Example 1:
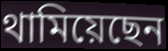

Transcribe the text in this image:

থামিয়েছেন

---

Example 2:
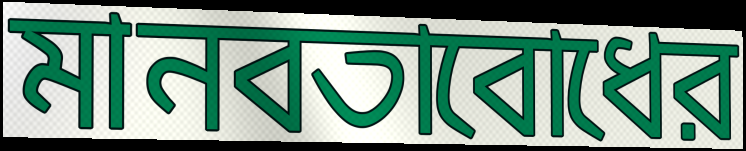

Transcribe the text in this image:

মানবতাবোধের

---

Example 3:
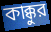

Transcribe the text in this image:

কাক্কুর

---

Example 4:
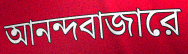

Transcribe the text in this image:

আনন্দবাজারে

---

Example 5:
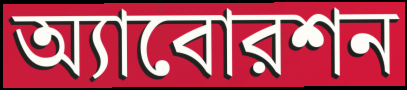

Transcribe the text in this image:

অ্যাবোরশন